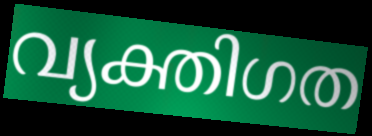
വ്യക്തിഗത